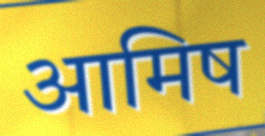
आमिष